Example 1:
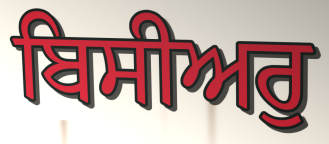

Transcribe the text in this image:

ਬਿਸੀਅਰੁ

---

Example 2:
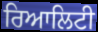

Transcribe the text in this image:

ਰਿਆਲਿਟੀ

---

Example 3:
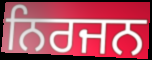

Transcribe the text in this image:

ਨਿਰਜਨ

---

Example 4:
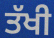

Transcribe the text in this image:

ਤੱਖੀ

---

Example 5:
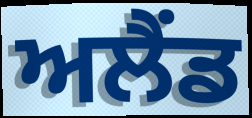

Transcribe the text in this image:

ਅਲੈਂਡ